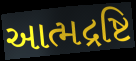
આત્મદ્રષ્ટિ